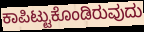
ಕಾಪಿಟ್ಟುಕೊಂಡಿರುವುದು